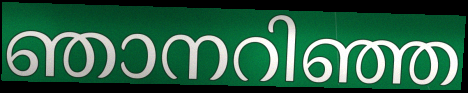
ഞാനറിഞ്ഞ